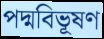
পদ্মবিভূষণ